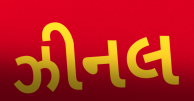
ઝીનલ